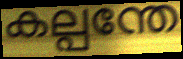
കല്പന്തേ